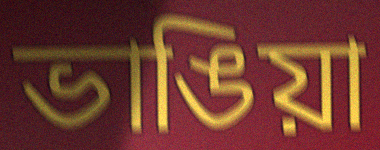
ভাঙিয়া